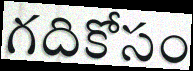
గదికోసం